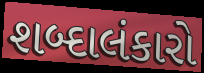
શબ્દાલંકારો